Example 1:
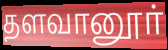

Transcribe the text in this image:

தளவானூர்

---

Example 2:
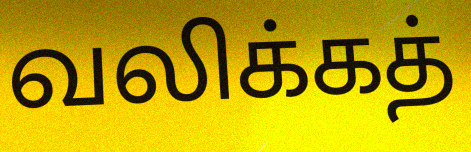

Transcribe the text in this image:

வலிக்கத்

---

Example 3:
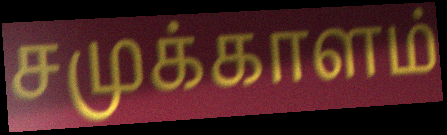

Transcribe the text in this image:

சமுக்காளம்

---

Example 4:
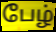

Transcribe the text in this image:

பேழ்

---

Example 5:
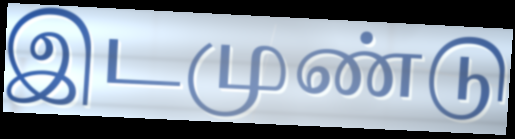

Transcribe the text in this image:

இடமுண்டு